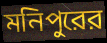
মনিপুরের